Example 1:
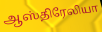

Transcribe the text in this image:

ஆஸ்திரேலியா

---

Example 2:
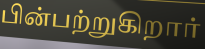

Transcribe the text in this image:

பின்பற்றுகிறார்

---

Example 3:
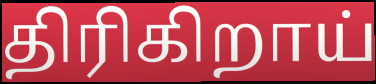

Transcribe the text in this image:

திரிகிறாய்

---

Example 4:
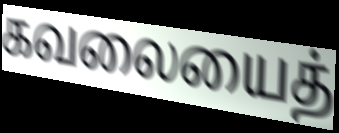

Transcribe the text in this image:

கவலையைத்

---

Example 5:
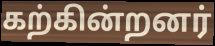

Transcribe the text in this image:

கற்கின்றனர்